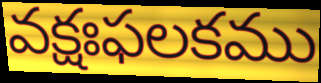
వక్షఃఫలకము